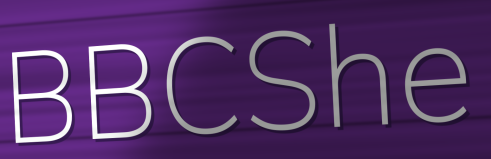
BBCShe